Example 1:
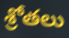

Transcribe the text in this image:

శ్రోతలు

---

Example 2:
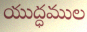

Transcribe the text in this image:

యుద్ధముల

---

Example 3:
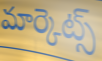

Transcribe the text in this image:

మార్కెట్స్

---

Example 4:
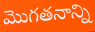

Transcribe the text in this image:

మొగతనాన్ని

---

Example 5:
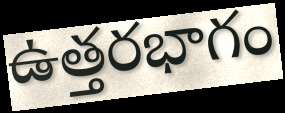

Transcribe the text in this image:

ఉత్తరభాగం